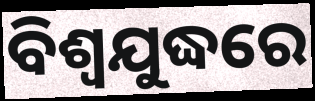
ବିଶ୍ବଯୁଦ୍ଧରେ